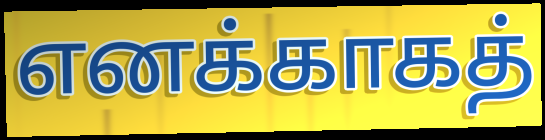
எனக்காகத்